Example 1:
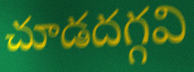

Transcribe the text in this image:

చూడదగ్గవి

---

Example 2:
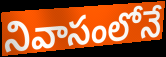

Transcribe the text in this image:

నివాసంలోనే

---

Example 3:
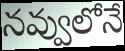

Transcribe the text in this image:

నవ్వులోనే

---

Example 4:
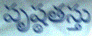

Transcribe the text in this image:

పృష్ఠతస్తు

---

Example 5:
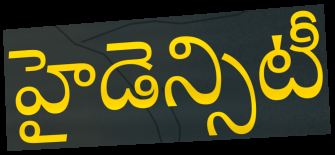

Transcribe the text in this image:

హైడెన్సిటీ